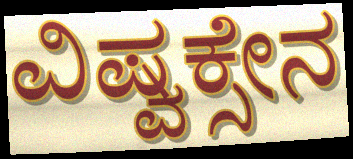
ವಿಷ್ವಕ್ಸೇನ